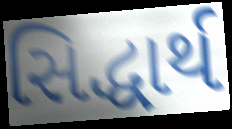
સિદ્ધાર્થ